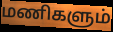
மணிகளும்